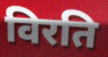
विरति